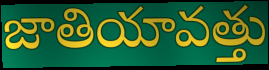
జాతియావత్తు